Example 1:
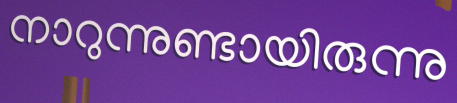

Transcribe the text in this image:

നാറുന്നുണ്ടായിരുന്നു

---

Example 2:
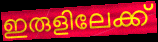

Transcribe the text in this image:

ഇരുളിലേക്ക്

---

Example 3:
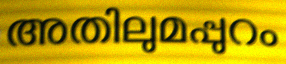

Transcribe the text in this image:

അതിലുമപ്പുറം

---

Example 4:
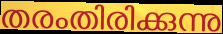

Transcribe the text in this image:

തരംതിരിക്കുന്നു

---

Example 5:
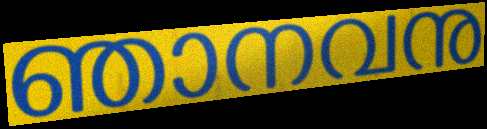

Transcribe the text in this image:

ഞാനവനു